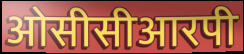
ओसीसीआरपी